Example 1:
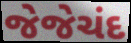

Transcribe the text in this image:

જેજેચંદ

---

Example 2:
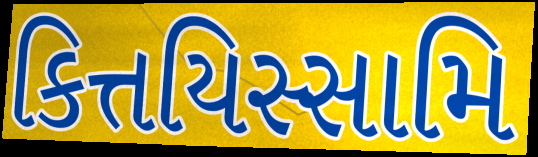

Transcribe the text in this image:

કિત્તયિસ્સામિ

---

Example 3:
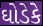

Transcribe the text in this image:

ઘોડેકે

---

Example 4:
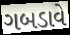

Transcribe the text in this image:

ગબડાવે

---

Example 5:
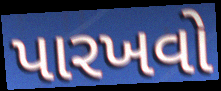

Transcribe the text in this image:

પારખવો